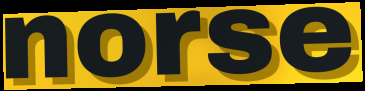
norse